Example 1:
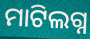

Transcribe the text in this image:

ମାଟିଲଗ୍ନ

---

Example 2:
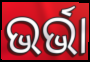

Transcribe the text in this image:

ଭର୍ଭା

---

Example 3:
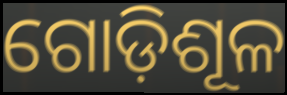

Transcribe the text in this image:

ଗୋଡ଼ିଶୂଳ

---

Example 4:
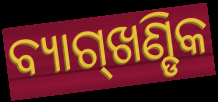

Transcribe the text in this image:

ବ୍ୟାଗ୍‌ଖଣ୍ଡିକ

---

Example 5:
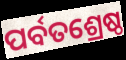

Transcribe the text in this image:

ପର୍ବତଶ୍ରେଷ୍ଠ